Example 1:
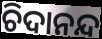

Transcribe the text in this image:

ଚିଦାନନ୍ଦ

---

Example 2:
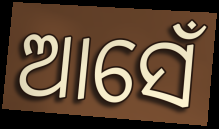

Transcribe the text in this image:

ଆସେଁ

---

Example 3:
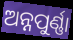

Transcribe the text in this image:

ଅନ୍ନପୁର୍ଣ୍ଣା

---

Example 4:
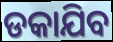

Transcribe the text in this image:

ଡକାଯିବ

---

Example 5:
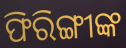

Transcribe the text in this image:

ଫିରିଙ୍ଗୀଙ୍କ